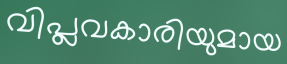
വിപ്ലവകാരിയുമായ